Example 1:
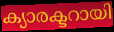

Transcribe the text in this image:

ക്യാരക്ടറായി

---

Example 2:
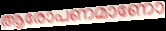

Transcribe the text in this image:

ആരോപണമാണോ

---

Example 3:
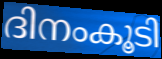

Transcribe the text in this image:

ദിനംകൂടി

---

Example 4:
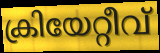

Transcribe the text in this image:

ക്രിയേറ്റീവ്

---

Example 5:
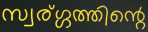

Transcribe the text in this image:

സ്വര്ഗ്ഗത്തിന്റെ